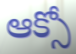
ఆక్సో